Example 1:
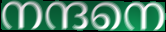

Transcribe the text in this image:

നന്ദനെ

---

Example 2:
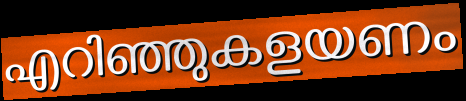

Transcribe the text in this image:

എറിഞ്ഞുകളയണം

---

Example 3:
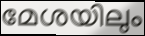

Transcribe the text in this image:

മേശയിലും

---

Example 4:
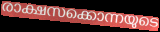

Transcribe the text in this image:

രാക്ഷസക്കൊന്നയുടെ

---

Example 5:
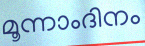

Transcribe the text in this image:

മൂന്നാംദിനം